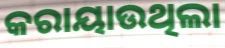
କରାୟାଉଥିଲା